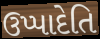
ઉપ્પાદેતિ